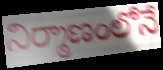
నిర్మాణంలోనే